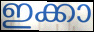
ഇക്കാ